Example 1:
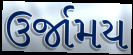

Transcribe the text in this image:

ઉર્જામય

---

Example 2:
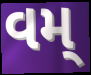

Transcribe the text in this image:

વમ્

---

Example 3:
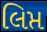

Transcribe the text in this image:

લિપ્ત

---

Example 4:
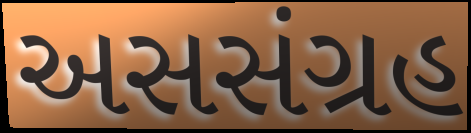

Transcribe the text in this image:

અસસંગ્રહ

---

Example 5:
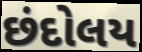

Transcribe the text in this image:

છંદોલય